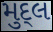
મુદ્લ